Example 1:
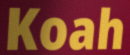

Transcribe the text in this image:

Koah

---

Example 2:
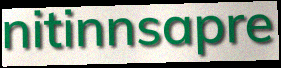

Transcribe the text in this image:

nitinnsapre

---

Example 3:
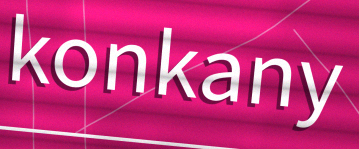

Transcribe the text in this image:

konkany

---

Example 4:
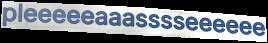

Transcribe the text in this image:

pleeeeeaaasssseeeeee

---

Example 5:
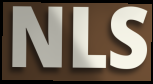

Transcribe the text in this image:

NLS